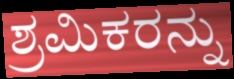
ಶ್ರಮಿಕರನ್ನು